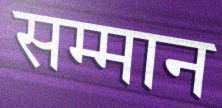
सम्मान